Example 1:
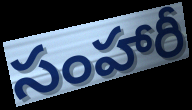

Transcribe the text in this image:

సంహారీ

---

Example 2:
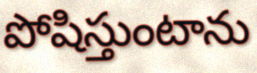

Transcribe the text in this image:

పోషిస్తుంటాను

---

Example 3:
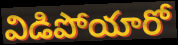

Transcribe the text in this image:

విడిపోయారో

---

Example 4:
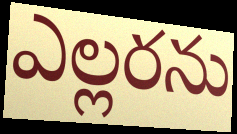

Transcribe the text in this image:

ఎల్లరను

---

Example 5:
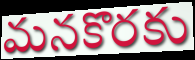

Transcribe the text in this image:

మనకొరకు